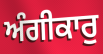
ਅੰਗੀਕਾਰੁ